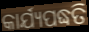
କାର୍ଯ୍ୟପଦ୍ଧତି